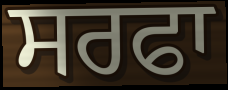
ਸਰਫਾ